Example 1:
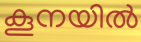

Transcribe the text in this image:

കൂനയിൽ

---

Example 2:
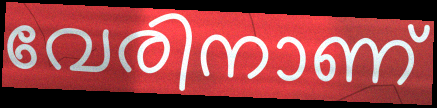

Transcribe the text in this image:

വേരിനാണ്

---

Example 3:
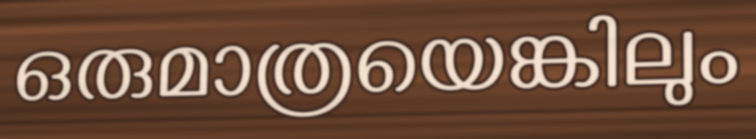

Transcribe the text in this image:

ഒരുമാത്രയെങ്കിലും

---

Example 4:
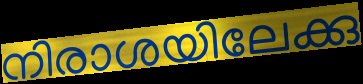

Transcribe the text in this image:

നിരാശയിലേക്കു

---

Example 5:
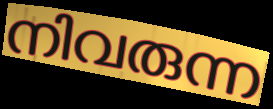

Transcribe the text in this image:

നിവരുന്ന